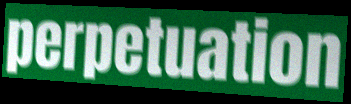
perpetuation